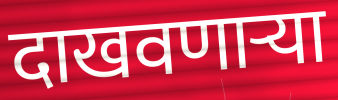
दाखवणाऱ्या